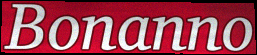
Bonanno